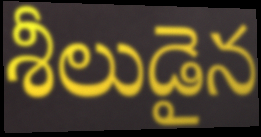
శీలుడైన